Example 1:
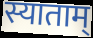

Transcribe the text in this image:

स्याताम्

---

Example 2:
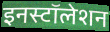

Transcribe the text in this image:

इनस्टॉलेशन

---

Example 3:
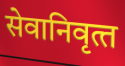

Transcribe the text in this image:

सेवानिवृत्‍त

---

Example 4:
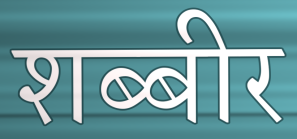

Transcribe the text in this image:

शब्बीर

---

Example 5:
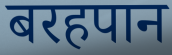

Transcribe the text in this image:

बरहपान